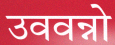
उववन्नो